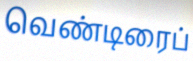
வெண்டிரைப்